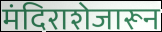
मंदिराशेजारून